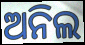
ଅନିଲ